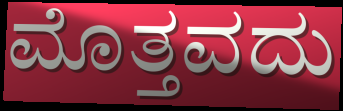
ಮೊತ್ತವದು